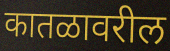
कातळावरील